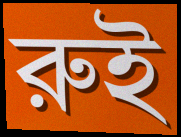
রুই